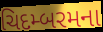
ચિદમ્બરમના